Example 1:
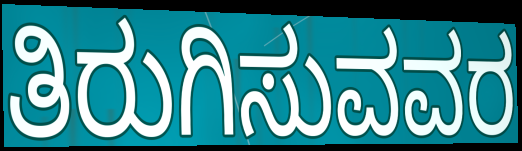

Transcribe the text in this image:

ತಿರುಗಿಸುವವರ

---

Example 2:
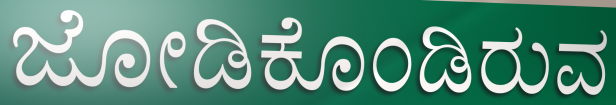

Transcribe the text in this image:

ಜೋಡಿಕೊಂಡಿರುವ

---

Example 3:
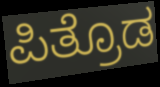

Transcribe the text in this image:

ಪಿತ್ರೊಡ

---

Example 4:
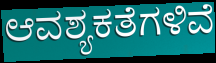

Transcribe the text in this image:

ಆವಶ್ಯಕತೆಗಳಿವೆ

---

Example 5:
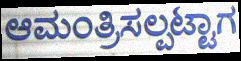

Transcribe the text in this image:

ಆಮಂತ್ರಿಸಲ್ಪಟ್ಟಾಗ